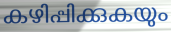
കഴിപ്പിക്കുകയും